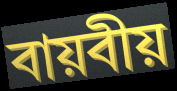
বায়বীয়